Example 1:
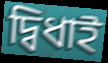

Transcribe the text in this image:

দ্বিধাই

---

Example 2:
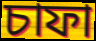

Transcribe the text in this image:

চাফা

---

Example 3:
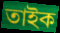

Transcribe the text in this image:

তাইক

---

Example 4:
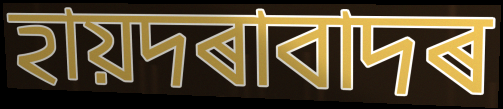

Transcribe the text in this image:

হায়দৰাবাদৰ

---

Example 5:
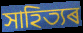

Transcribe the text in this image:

সাহিত্যৰ